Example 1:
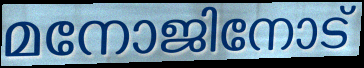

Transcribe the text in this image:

മനോജിനോട്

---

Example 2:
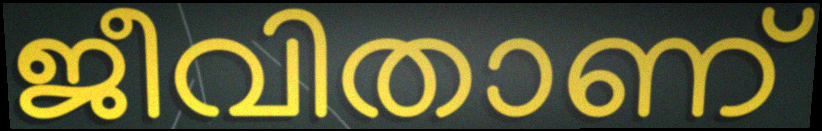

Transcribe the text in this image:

ജീവിതാണ്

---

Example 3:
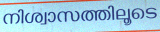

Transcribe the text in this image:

നിശ്വാസത്തിലൂടെ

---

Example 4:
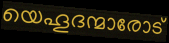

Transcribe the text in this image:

യെഹൂദന്മാരോട്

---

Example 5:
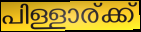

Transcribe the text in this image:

പിള്ളാര്ക്ക്